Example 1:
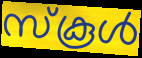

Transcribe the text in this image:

സ്കൂൾ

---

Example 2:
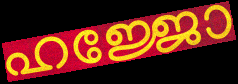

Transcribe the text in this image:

ഹജ്ജോ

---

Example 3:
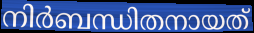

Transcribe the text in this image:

നിർബന്ധിതനായത്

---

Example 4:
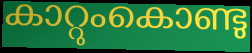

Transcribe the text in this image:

കാറ്റുംകൊണ്ടു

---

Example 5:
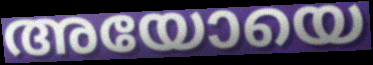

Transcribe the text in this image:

അയോയെ